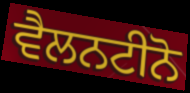
ਵੈਲਨਟੀਨੋ